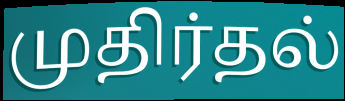
முதிர்தல்